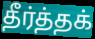
தீர்த்தக்